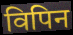
विपिन